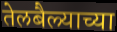
तेलबैल्याच्या